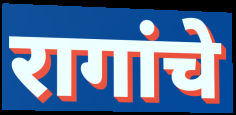
रागांचे